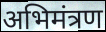
अभिमंत्रण